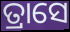
ତ୍ରାସେ